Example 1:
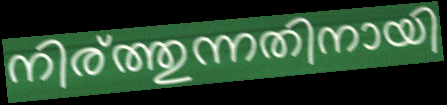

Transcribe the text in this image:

നിര്ത്തുന്നതിനായി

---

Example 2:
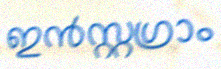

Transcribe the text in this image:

ഇൻസ്റ്റഗ്രാം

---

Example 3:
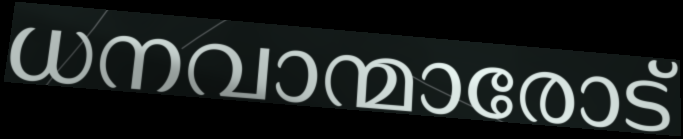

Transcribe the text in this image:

ധനവാന്മാരോട്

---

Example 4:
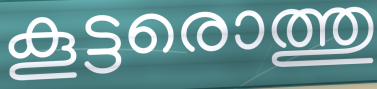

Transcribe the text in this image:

കൂട്ടരൊത്തു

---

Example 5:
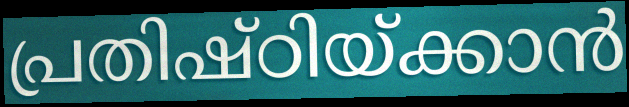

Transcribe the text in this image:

പ്രതിഷ്ഠിയ്ക്കാൻ